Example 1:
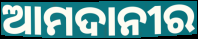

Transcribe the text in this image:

ଆମଦାନୀର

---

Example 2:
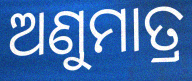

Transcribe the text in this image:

ଅଣୁମାତ୍ର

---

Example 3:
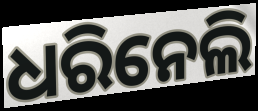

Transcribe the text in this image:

ଧରିନେଲି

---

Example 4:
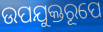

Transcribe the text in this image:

ଉପଯୁକ୍ତରୂପେ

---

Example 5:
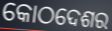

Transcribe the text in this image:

କୋଠଦେଶର